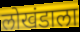
लोखंडाला